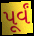
પૂર્વં